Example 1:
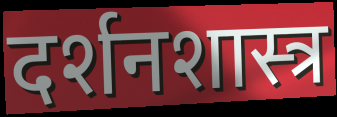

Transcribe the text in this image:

दर्शनशास्त्र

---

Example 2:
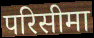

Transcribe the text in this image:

परिसीमा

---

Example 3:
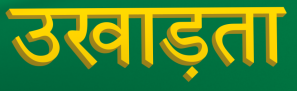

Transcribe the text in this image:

उखाड़ता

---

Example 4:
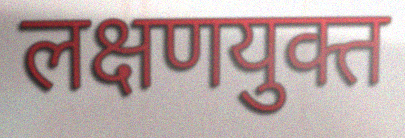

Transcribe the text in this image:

लक्षणयुक्त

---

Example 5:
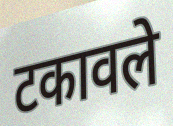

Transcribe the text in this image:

टकावले